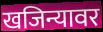
खजिन्यावर